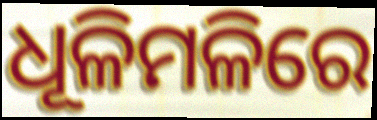
ଧୂଳିମଳିରେ